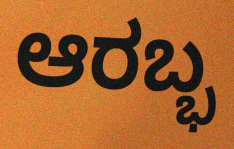
ಆರಬ್ಭ